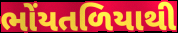
ભોંયતળિયાથી